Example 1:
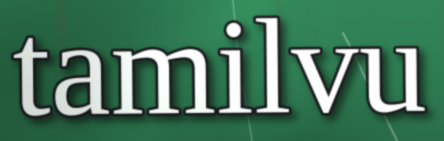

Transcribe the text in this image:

tamilvu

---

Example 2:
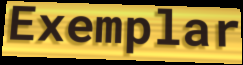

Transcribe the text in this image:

Exemplar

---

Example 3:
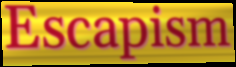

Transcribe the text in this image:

Escapism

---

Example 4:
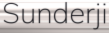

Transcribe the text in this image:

Sunderji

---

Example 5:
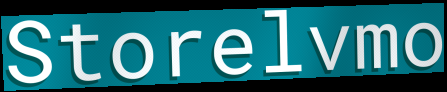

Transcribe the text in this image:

Storelvmo